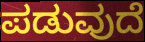
ಪಡುವುದೆ